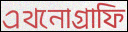
এথনোগ্রাফি